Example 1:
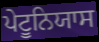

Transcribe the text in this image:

ਪੇਟੂਨਿਯਾਸ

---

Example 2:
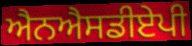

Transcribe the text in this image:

ਐਨਐਸਡੀਏਪੀ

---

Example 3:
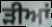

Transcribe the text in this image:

ੜੀਆਂ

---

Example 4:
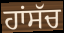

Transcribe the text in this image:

ਹਾਂਸੱਚ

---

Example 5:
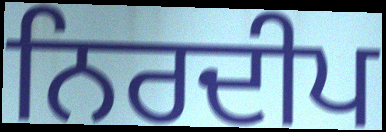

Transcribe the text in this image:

ਨਿਰਦੀਪ